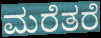
ಮರೆತರೆ